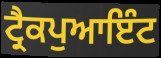
ਟ੍ਰੈਕਪੁਆਇੰਟ